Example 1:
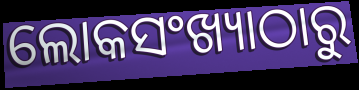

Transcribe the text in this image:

ଲୋକସଂଖ୍ୟାଠାରୁ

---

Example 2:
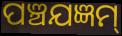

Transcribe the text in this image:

ପଞ୍ଚଯଜ୍ଞମ୍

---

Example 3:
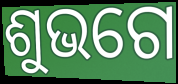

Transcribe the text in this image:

ଶୁଭଗେ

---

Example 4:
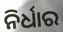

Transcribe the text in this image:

ନିର୍ଧାର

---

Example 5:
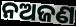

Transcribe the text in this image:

ନଅଜଣ